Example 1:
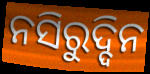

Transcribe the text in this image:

ନସିରୁଦ୍ଦିନ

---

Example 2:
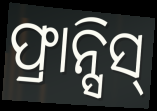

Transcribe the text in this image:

ଫ୍ରାନ୍ସିସ୍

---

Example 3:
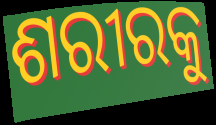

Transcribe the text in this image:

ଶରୀରକୁ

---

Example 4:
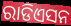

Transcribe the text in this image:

ରାଡିଏସନ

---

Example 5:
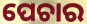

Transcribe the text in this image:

ପେଚାର